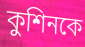
কুশিনকে